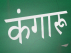
कंगारू